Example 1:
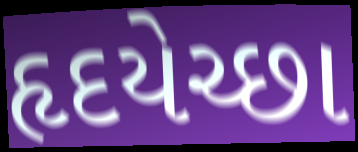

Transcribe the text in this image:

હૃદયેચ્છા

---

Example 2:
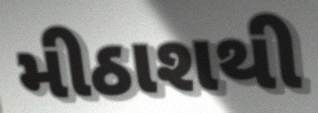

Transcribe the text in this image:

મીઠાશથી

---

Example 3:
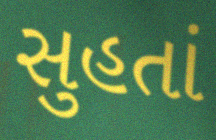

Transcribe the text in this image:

સુહતાં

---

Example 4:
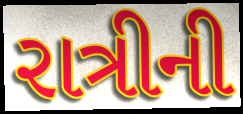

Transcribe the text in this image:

રાત્રીની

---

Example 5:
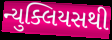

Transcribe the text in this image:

ન્યુક્લિયસથી